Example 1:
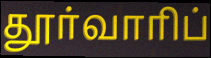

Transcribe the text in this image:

தூர்வாரிப்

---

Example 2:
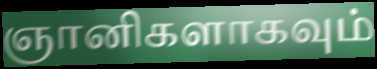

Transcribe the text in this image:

ஞானிகளாகவும்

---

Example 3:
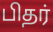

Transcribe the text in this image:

பிதர்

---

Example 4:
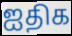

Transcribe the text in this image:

ஐதிக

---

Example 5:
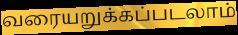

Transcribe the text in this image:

வரையறுக்கப்படலாம்